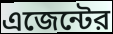
এজেন্টের